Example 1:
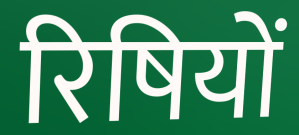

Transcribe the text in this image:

रिषियों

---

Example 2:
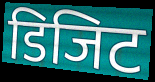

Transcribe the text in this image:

डिजिट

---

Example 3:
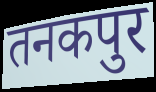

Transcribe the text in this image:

तनकपुर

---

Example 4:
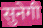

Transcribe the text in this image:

सुनेगी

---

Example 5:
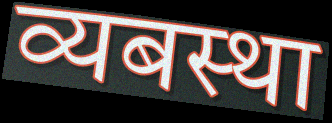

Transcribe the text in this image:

व्यबस्था